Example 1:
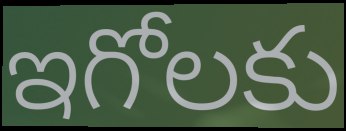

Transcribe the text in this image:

ఇగోలకు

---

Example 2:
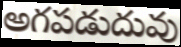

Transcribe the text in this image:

అగపడుదువు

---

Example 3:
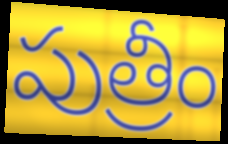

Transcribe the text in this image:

పుత్రీం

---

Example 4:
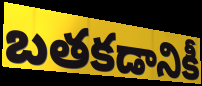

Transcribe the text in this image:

బతకడానికీ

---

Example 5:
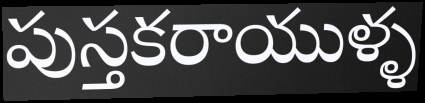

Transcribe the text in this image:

పుస్తకరాయుళ్ళ